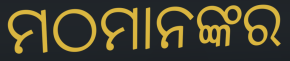
ମଠମାନଙ୍କର